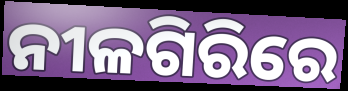
ନୀଳଗିରିରେ